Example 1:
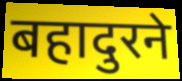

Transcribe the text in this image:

बहादुरने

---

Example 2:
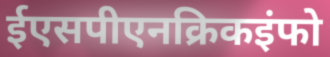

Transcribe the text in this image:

ईएसपीएनक्रिकइंफो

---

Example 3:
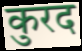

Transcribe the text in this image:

कुरद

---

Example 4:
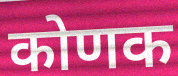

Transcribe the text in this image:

कोणक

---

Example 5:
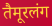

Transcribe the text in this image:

तैमूरलंग